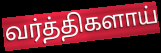
வர்த்திகளாய்